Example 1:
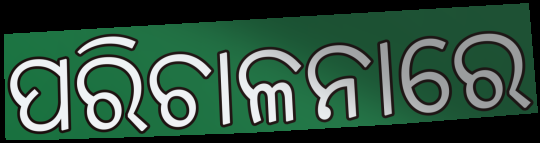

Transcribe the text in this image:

ପରିଚାଳନାରେ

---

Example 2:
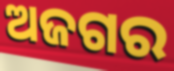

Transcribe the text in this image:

ଅଜଗର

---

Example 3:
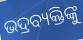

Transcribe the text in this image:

ଭଦ୍ରବ୍ୟକ୍ତିଙ୍କୁ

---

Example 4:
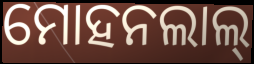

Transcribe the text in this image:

ମୋହନଲାଲ୍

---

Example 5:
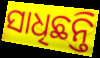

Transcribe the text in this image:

ସାଧିଛନ୍ତି